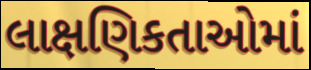
લાક્ષણિકતાઓમાં